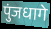
पुंजधागे